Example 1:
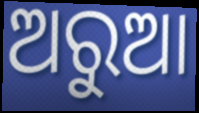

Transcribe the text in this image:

ଅରୁଆ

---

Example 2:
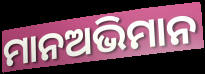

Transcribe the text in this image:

ମାନଅଭିମାନ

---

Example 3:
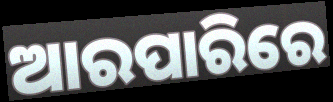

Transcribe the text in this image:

ଆରପାରିରେ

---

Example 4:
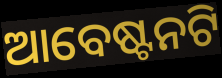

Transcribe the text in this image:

ଆବେଷ୍ଟନଟି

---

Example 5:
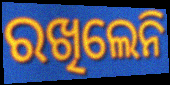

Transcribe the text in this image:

ରଖିଲେନି